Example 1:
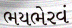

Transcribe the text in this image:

ભયભેરવં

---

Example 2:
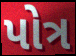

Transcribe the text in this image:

પોત્ર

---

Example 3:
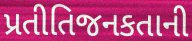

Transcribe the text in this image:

પ્રતીતિજનકતાની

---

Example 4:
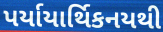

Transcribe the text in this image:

પર્યાયાર્થિકનયથી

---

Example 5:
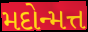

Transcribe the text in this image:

મદોન્મત્ત